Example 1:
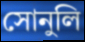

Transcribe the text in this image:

সোনুলি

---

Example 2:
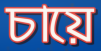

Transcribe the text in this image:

চায়ে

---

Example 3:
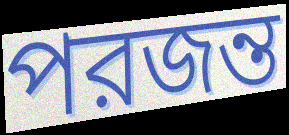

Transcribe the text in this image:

পরজন্ত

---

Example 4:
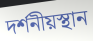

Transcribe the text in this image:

দর্শনীয়স্থান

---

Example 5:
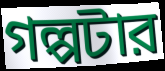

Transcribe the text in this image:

গল্পটার